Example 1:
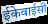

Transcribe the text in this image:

ईकेवाईसी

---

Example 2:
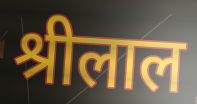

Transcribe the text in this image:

श्रीलाल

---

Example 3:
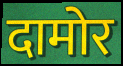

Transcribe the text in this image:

दामोर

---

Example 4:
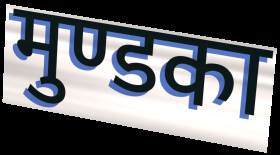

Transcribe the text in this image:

मुण्डका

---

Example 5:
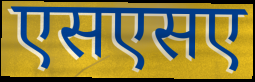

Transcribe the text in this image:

एसएसए